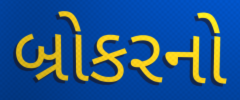
બ્રોકરનો